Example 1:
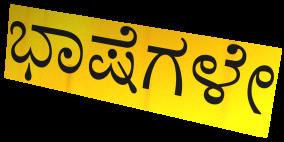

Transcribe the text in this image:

ಭಾಷೆಗಳೇ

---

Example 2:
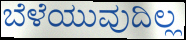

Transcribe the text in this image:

ಬೆಳೆಯುವುದಿಲ್ಲ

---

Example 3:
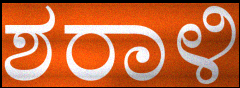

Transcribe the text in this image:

ಶರಾಳಿ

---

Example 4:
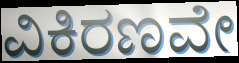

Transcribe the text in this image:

ವಿಕಿರಣವೇ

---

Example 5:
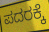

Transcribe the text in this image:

ಪದರಕ್ಕೆ